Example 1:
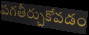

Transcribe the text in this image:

పగతీర్చుకోవడం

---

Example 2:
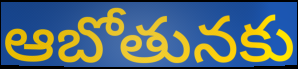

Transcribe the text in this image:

ఆబోతునకు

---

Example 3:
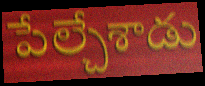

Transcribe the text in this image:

పేల్చేశాడు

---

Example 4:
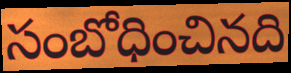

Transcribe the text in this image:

సంబోధించినది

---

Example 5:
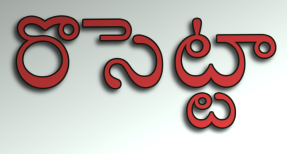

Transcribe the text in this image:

రొసెట్టా